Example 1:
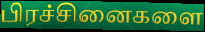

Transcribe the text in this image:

பிரச்சினைகளை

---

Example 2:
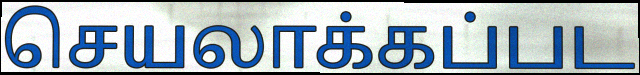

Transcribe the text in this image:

செயலாக்கப்பட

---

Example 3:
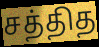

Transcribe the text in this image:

சத்தித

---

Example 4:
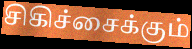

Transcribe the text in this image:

சிகிச்சைக்கும்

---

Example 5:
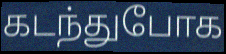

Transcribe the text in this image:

கடந்துபோக